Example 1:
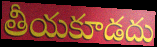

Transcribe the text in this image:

తీయకూడదు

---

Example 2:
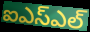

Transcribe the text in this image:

ఐఎస్ఎల్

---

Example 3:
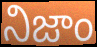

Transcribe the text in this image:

నిజాం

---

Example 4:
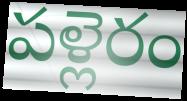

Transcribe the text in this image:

పళ్లెరం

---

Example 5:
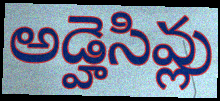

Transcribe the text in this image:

అడ్హెసివ్లు